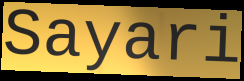
Sayari